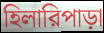
হিলারিপাড়া